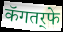
कॅगतर्फे